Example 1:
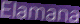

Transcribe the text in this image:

Elamana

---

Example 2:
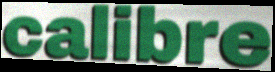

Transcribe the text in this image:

calibre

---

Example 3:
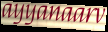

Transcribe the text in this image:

ayyanaarv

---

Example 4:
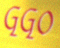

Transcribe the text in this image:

GGO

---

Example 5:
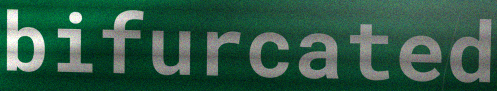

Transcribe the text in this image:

bifurcated